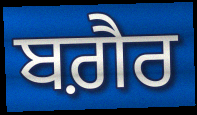
ਬਗ਼ੈਰ